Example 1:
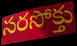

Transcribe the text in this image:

సరసోక్తు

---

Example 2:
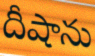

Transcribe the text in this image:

దీషాను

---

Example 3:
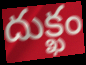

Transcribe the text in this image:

దుక్ఖం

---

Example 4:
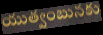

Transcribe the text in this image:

యుత్వంబునకు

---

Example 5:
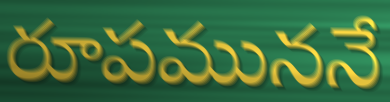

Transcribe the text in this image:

రూపముననే